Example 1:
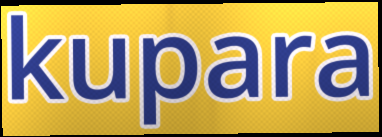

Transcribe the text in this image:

kupara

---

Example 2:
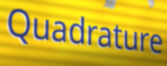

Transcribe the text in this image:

Quadrature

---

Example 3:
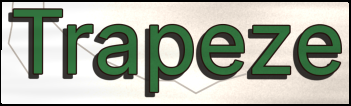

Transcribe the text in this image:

Trapeze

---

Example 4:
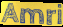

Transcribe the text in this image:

Amri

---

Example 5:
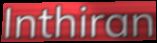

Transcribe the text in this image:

Inthiran